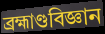
ব্ৰহ্মাণ্ডবিজ্ঞান